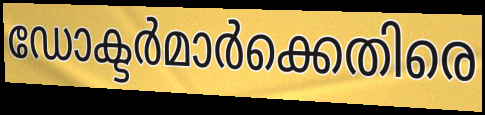
ഡോക്ടർമാർക്കെതിരെ